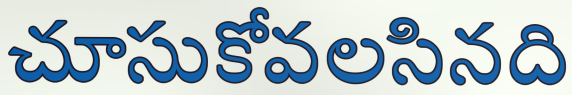
చూసుకోవలసినది